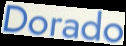
Dorado